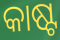
କାଷ୍ଟ